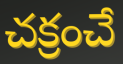
చక్రంచే